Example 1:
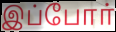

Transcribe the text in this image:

இப்போர்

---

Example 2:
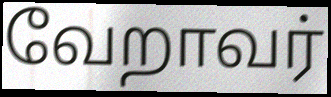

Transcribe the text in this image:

வேறாவர்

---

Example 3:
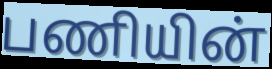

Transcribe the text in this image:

பணியின்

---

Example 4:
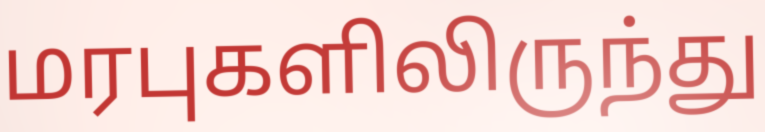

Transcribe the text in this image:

மரபுகளிலிருந்து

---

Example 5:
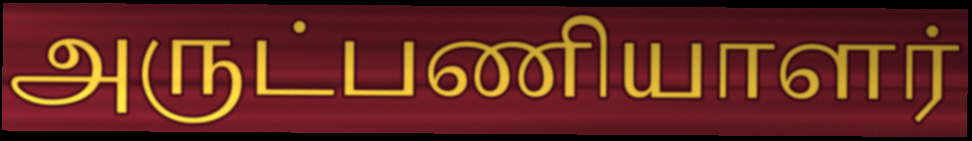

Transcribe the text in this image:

அருட்பணியாளர்